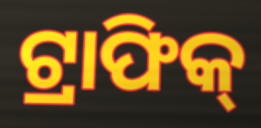
ଟ୍ରାଫିକ୍